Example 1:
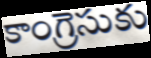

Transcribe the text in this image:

కాంగ్రెసుకు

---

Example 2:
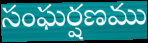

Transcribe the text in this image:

సంఘర్షణము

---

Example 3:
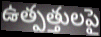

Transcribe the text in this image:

ఉత్పత్తులపై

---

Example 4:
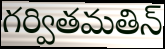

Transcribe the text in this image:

గర్వితమతిన్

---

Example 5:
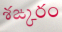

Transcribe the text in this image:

శఙ్కరం